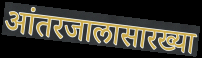
आंतरजालासारख्या